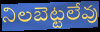
నిలబెట్టలేవు